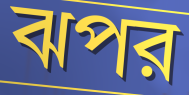
ঝপর